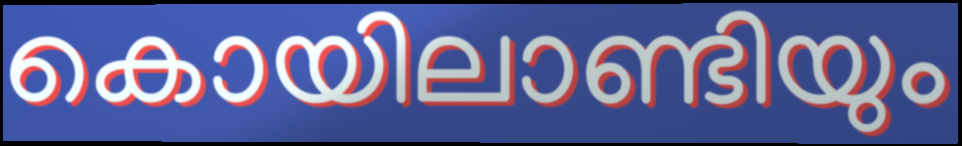
കൊയിലാണ്ടിയും